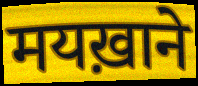
मयख़ाने